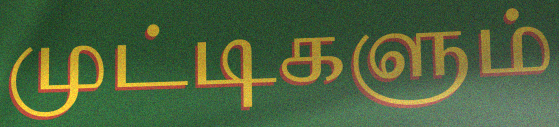
முட்டிகளும்